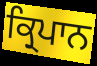
ਕ੍ਰਿਪਾਨ